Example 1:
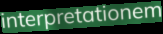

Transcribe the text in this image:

interpretationem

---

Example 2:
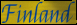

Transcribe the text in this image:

Finland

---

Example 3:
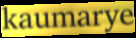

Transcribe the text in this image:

kaumarye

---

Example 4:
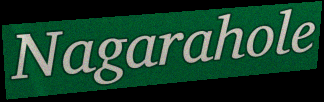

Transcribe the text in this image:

Nagarahole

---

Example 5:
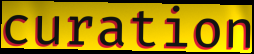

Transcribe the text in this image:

curation